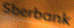
Sberbank